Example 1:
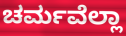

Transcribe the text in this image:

ಚರ್ಮವೆಲ್ಲಾ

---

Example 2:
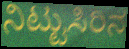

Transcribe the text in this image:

ನಿಟ್ಟುಸಿರಿನ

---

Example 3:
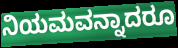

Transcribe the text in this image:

ನಿಯಮವನ್ನಾದರೂ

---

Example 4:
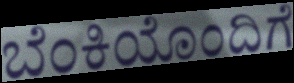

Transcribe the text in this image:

ಬೆಂಕಿಯೊಂದಿಗೆ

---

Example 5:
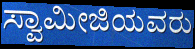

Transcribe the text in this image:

ಸ್ವಾಮೀಜಿಯವರು